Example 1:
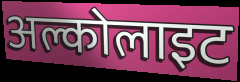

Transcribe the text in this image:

अल्कोलाइट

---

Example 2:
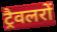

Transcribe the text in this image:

ट्रैवलरों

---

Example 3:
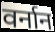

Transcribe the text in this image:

वर्नान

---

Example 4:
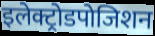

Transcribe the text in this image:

इलेक्ट्रोडपोजिशन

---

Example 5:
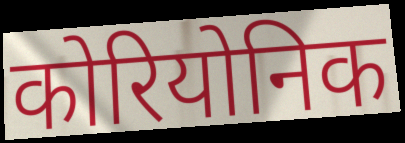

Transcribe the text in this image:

कोरियोनिक